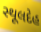
સ્થૂલદેહ